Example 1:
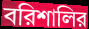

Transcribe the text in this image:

বরিশালির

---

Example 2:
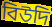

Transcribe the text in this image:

বিউদি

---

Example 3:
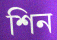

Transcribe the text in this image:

শিন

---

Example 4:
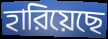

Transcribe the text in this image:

হারিয়েছে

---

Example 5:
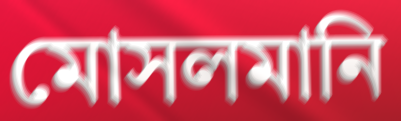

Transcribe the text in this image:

মোসলমানি